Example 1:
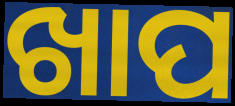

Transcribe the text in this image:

ଖାପ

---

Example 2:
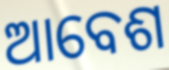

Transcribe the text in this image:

ଆବେଶ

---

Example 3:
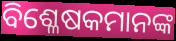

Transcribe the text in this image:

ବିଶ୍ଳେଷକମାନଙ୍କ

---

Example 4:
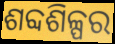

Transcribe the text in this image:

ଶବ୍ଦଶିଳ୍ପର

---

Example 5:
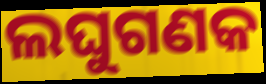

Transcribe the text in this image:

ଲଘୁଗଣକ